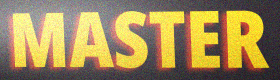
MASTER